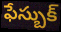
ఫేస్బుక్